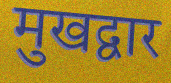
मुखद्वार